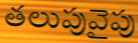
తలుపువైపు